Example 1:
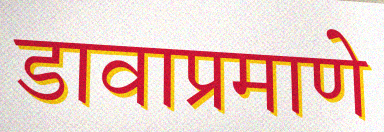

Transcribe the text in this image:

डावाप्रमाणे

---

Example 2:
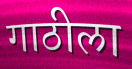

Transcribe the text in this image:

गाठीला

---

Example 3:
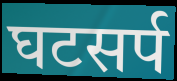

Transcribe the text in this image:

घटसर्प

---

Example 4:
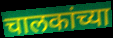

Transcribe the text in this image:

चालकांच्या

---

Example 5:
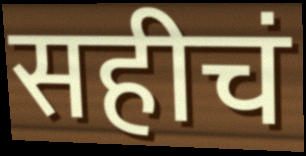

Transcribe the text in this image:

सहीचं